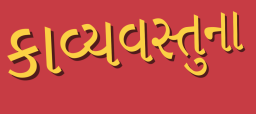
કાવ્યવસ્તુના